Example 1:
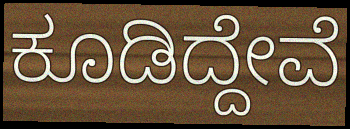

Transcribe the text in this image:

ಕೂಡಿದ್ದೇವೆ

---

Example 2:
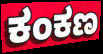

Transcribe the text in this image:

ಕಂಕಣ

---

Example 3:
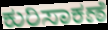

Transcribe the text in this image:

ಕುರಿಸಾಕಣೆ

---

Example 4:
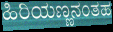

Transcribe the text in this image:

ಹಿರಿಯಣ್ಣನಂತಹ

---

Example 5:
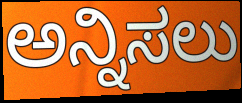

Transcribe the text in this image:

ಅನ್ನಿಸಲು